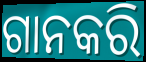
ଗାନକରି